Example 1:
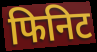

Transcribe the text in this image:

फिनिट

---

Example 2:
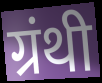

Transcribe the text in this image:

ग्रंथी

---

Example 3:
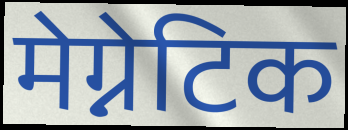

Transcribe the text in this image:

मेग्नेटिक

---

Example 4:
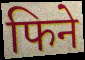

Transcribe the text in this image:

फिने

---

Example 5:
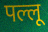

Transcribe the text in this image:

पल्लू